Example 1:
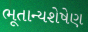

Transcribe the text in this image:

ભૂતાન્યશેષેણ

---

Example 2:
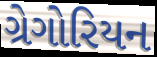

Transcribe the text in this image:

ગ્રેગોરિયન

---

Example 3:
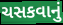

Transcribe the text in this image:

ચસકવાનું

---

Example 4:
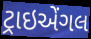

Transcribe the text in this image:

ટ્રાઇએંગલ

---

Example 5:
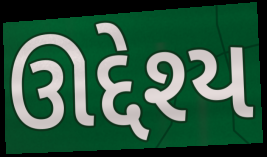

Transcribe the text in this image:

ઊદ્દેશ્ય